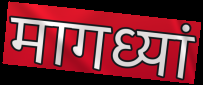
मागध्यां